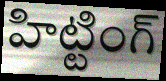
హిట్టింగ్